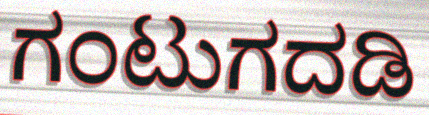
ಗಂಟುಗದಡಿ